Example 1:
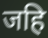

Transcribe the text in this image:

जहि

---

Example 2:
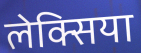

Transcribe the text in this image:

लेक्सिया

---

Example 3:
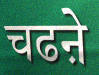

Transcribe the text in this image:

चढऩे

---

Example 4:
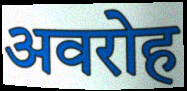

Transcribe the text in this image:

अवरोह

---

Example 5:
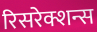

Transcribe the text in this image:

रिसरेक्शन्स